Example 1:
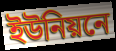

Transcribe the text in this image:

ইউনিয়নে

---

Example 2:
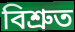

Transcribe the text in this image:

বিশ্রুত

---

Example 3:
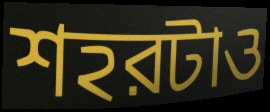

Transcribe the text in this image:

শহরটাও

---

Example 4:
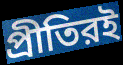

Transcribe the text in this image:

প্রীতিরই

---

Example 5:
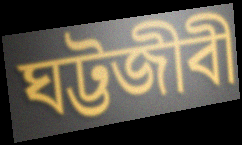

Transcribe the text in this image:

ঘট্টজীবী